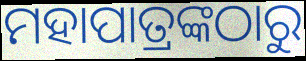
ମହାପାତ୍ରଙ୍କଠାରୁ